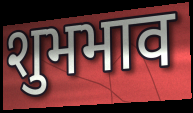
शुभभाव